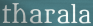
tharala